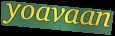
yoavaan